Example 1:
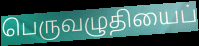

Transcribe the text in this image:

பெருவழுதியைப்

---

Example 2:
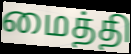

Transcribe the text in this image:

மைத்தி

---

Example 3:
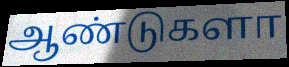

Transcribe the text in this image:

ஆண்டுகளா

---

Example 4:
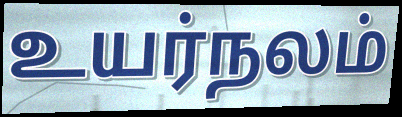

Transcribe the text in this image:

உயர்நலம்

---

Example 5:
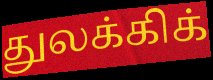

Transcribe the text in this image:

துலக்கிக்